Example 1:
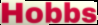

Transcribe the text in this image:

Hobbs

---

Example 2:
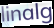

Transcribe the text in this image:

linalg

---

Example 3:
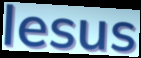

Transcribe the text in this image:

Iesus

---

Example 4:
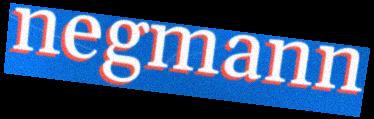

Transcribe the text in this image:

negmann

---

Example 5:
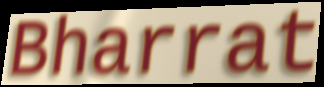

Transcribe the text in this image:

Bharrat